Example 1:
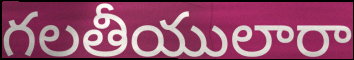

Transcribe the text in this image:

గలతీయులారా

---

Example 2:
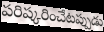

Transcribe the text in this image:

పరిష్కరించేటప్పుడు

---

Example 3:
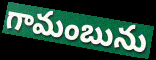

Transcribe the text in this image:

గామంబును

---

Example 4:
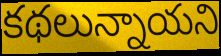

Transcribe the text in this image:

కథలున్నాయని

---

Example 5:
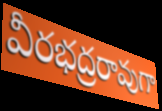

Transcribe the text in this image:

వీరభద్రరావుగా